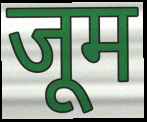
जूम